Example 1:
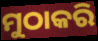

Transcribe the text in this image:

ମୁଠାକରି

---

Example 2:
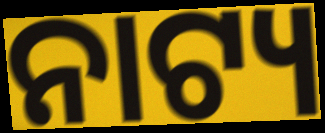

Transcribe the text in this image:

ନାଟ୍ୟ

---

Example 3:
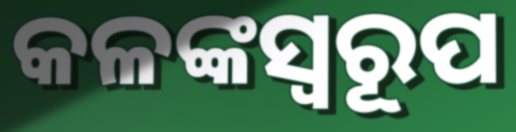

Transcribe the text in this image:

କଳଙ୍କସ୍ୱରୂପ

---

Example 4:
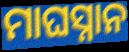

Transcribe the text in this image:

ମାଘସ୍ନାନ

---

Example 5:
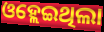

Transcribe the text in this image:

ଓହ୍ଲେଇଥିଲା